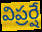
విప్రర్షే